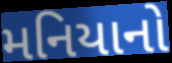
મનિયાનો